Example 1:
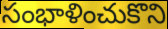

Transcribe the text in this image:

సంభాళించుకొని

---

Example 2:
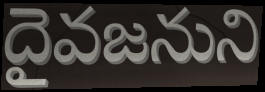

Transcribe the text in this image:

దైవజనుని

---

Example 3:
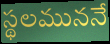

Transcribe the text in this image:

స్థలముననే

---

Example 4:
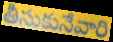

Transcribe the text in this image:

తీసుకునేవారి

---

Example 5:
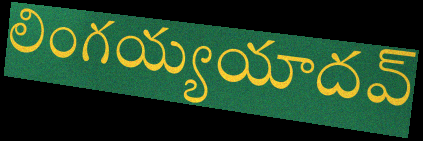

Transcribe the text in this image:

లింగయ్యయాదవ్